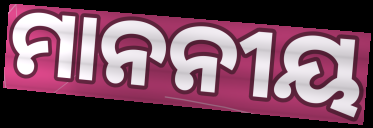
ମାନନୀୟ